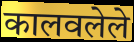
कालवलेले